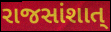
રાજસાંશાત્